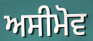
ਅਸੀਮੋਵ